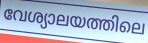
വേശ്യാലയത്തിലെ